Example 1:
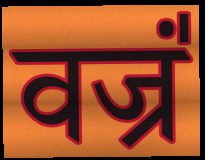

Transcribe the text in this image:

वज्रं॑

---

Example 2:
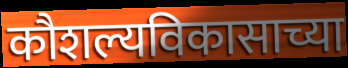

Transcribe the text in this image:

कौशल्यविकासाच्या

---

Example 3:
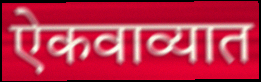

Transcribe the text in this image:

ऐकवाव्यात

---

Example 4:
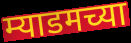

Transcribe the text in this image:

म्याडमच्या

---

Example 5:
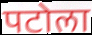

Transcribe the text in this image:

पटोला